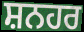
ਸ਼ਨਹਰ